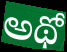
అథో